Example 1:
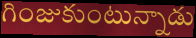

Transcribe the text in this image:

గింజుకుంటున్నాడు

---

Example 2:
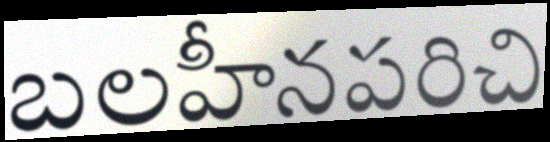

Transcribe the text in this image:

బలహీనపరిచి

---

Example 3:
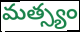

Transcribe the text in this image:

మత్స్యం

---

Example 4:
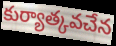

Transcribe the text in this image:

కుర్యాత్కవచేన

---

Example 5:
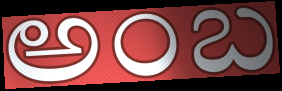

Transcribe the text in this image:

అంబ